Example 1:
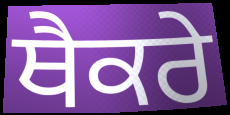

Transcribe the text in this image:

ਥੈਕਰੇ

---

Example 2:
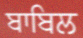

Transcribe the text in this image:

ਬਾਬਿਲ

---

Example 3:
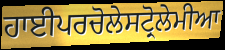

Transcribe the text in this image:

ਹਾਈਪਰਚੋਲੇਸਟ੍ਰੋਲੇਮੀਆ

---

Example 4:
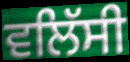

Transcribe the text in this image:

ਵਲਿੱਸੀ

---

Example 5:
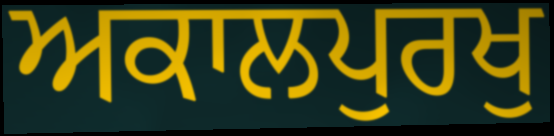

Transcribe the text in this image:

ਅਕਾਲਪੁਰਖੁ